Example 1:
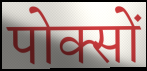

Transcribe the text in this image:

पोक्सों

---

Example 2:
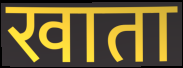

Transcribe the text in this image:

खाता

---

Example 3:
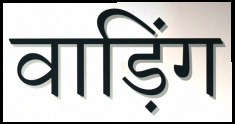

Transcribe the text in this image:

वाड़िंग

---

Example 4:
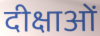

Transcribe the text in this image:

दीक्षाओं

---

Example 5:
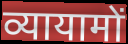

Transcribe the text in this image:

व्यायामों